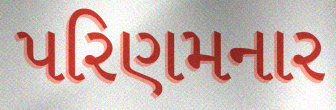
પરિણમનાર